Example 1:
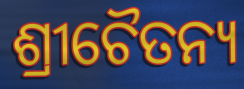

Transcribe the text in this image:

ଶ୍ରୀଚୈତନ୍ୟ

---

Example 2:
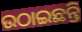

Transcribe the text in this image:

ଉଠାଇଛନ୍ତି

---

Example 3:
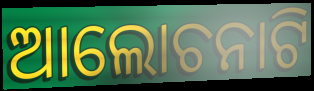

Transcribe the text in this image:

ଆଲୋଚନାଟି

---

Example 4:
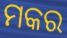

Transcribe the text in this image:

ମକର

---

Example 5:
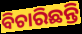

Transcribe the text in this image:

ବିଚାରିଛନ୍ତି